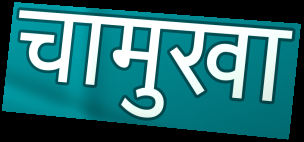
चामुखा